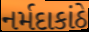
નર્મદાકાંઠે